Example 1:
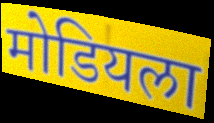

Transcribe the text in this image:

मोडियला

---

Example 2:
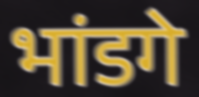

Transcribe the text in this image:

भांडगे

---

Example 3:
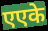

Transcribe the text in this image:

एएके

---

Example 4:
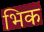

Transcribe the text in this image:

भिक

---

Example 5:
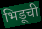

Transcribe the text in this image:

भिडूची